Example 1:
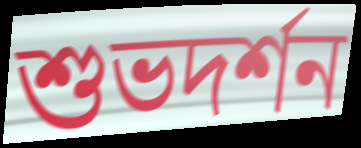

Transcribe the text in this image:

শুভদর্শন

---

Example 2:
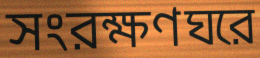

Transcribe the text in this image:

সংরক্ষণঘরে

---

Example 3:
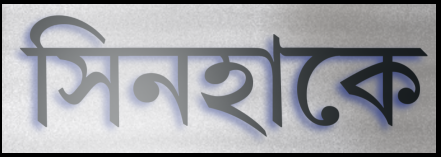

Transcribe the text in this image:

সিনহাকে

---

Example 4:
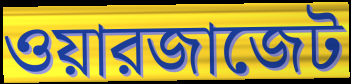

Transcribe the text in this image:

ওয়ারজাজেট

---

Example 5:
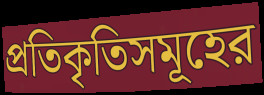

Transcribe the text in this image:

প্রতিকৃতিসমূহের